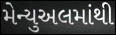
મેન્યુઅલમાંથી